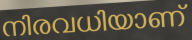
നിരവധിയാണ്